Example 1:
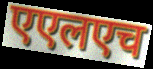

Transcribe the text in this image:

एएलएच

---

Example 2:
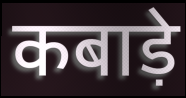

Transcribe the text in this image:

कबाड़े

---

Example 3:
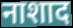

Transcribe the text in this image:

नाशाद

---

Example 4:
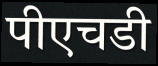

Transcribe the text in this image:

पीएचडी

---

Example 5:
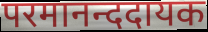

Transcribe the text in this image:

परमानन्ददायक